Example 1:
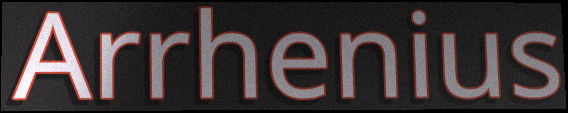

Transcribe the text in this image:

Arrhenius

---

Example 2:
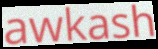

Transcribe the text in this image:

awkash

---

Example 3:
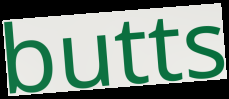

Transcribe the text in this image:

butts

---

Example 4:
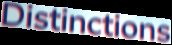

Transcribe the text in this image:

Distinctions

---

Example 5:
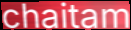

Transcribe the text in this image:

chaitam